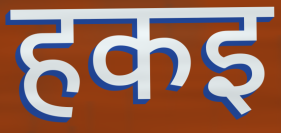
हकइ